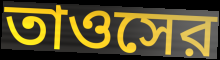
তাওসের